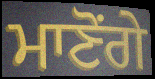
ਮਾਣੋਂਗੇ